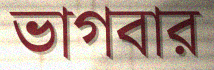
ভাগবার